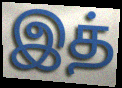
இத்